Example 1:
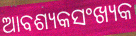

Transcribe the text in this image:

ଆବଶ୍ୟକସଂଖ୍ୟକ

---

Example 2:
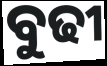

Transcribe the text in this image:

ବୁଢୀ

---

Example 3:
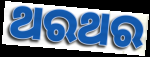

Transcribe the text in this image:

ଥରଥର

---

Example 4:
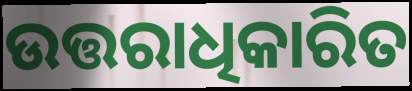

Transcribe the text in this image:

ଉତ୍ତରାଧିକାରିତ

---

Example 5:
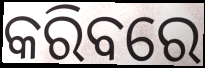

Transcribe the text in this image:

କରିବରେ